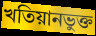
খতিয়ানভুক্ত